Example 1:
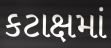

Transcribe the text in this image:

કટાક્ષમાં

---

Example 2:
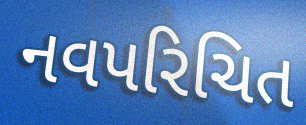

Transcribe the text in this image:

નવપરિચિત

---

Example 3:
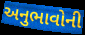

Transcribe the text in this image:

અનુભાવોની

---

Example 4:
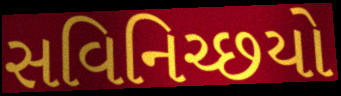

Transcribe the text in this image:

સવિનિચ્છયો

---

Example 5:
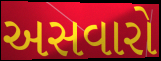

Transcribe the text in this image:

અસવારો